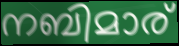
നബിമാര്